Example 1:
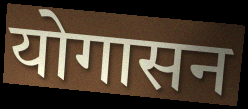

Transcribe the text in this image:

योगासन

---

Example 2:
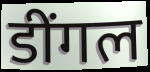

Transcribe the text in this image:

डींगल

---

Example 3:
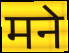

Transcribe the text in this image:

मने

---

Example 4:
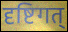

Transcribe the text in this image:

दृष्टिगत्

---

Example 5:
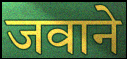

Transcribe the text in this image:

जवाने